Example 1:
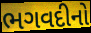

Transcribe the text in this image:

ભગવદીનો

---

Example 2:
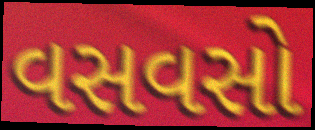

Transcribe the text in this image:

વસવસો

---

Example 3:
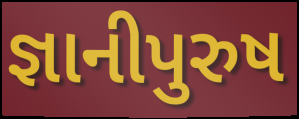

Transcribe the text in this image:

જ્ઞાનીપુરુષ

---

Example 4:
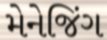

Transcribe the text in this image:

મેનેજિંગ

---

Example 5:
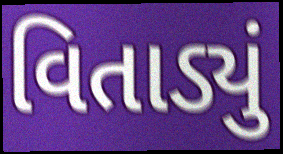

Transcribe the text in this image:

વિતાડ્યું